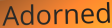
Adorned